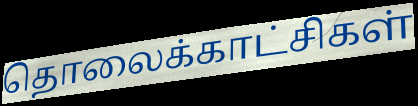
தொலைக்காட்சிகள்